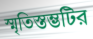
স্মৃতিস্তম্ভটির